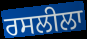
ਰਸਲੀਲਾ